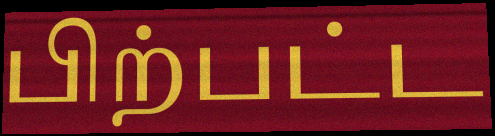
பிற்பட்ட